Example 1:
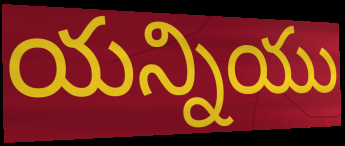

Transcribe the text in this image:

యన్నియు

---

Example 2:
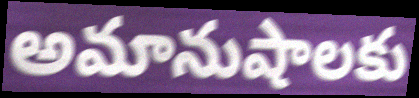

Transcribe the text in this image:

అమానుషాలకు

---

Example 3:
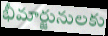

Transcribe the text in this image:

భీమార్జునులకు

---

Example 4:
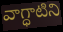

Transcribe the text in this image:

వాగ్ధాటిని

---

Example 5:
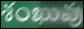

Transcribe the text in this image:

శంఖువు